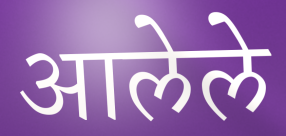
आलेले